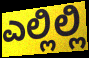
ಎಲ್ಲಿಲ್ಲಿ